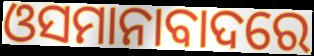
ଓସମାନାବାଦରେ